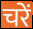
चरें